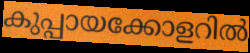
കുപ്പായക്കോളറിൽ